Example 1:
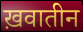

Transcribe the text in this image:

ख़वातीन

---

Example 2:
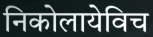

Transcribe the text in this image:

निकोलायेविच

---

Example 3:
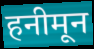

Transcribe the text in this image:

हनीमून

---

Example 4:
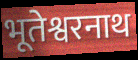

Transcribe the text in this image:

भूतेश्वरनाथ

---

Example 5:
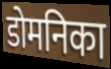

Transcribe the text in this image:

डोमनिका